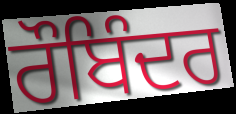
ਰੌਬਿੰਦਰ